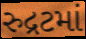
રુદ્રટમાં